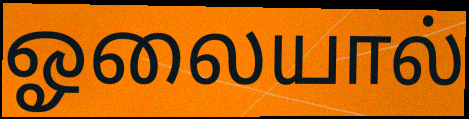
ஓலையால்